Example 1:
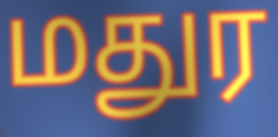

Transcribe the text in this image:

மதுர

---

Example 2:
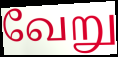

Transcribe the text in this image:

வேறு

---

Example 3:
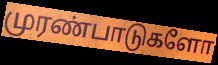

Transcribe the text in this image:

முரண்பாடுகளோ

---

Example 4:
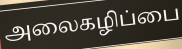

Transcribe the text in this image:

அலைகழிப்பை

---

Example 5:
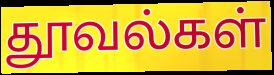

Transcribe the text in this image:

தூவல்கள்